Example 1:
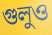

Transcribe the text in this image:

গুলুও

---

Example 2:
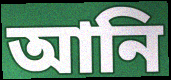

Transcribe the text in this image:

আনি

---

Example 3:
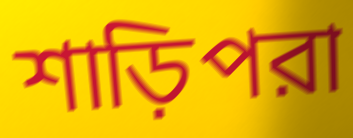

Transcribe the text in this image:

শাড়িপরা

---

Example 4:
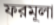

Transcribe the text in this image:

ফরমূলা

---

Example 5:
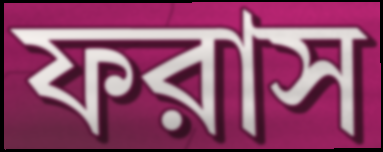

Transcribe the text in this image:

ফরাস